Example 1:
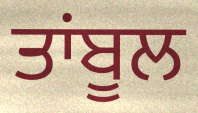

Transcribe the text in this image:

ਤਾਂਬੂਲ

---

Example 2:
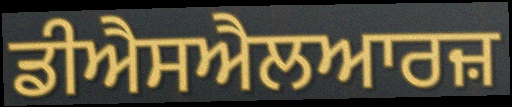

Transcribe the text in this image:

ਡੀਐਸਐਲਆਰਜ਼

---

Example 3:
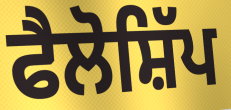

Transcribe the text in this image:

ਫੈਲੋਸ਼ਿੱਪ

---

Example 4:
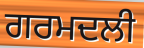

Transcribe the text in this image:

ਗਰਮਦਲੀ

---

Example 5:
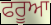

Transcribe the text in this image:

ਫਰੂਆ